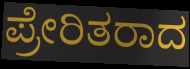
ಪ್ರೇರಿತರಾದ